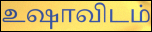
உஷாவிடம்